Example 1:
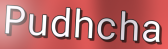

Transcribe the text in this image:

Pudhcha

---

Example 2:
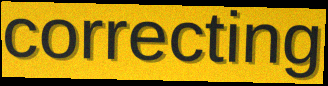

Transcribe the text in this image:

correcting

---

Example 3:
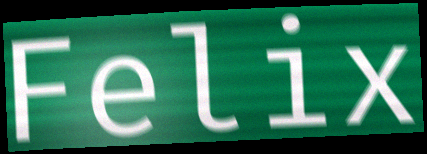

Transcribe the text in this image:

Felix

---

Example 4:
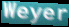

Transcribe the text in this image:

Weyer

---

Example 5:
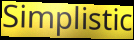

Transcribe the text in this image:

Simplistic